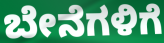
ಬೇನೆಗಳಿಗೆ